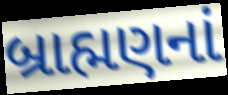
બ્રાહ્મણનાં